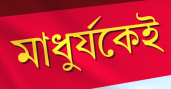
মাধুর্যকেই